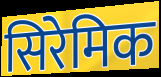
सिरेमिक